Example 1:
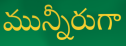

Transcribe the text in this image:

మున్నీరుగా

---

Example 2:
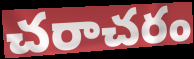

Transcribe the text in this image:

చరాచరం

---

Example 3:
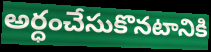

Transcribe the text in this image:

అర్ధంచేసుకొనటానికి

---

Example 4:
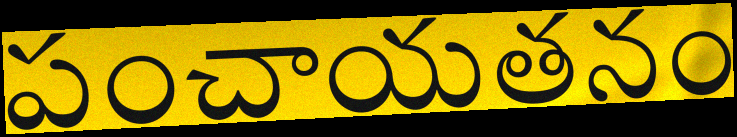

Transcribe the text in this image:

పంచాయతనం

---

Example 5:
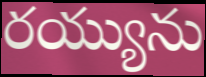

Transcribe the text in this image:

రయ్యును